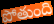
పోతుంది